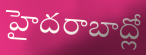
హైదరాబాద్లో